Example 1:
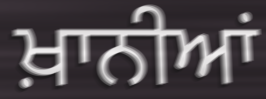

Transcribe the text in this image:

ਖ਼ਾਨੀਆਂ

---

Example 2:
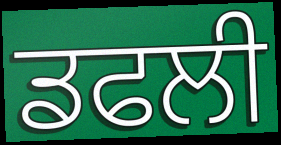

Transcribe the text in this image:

ਡਫਲੀ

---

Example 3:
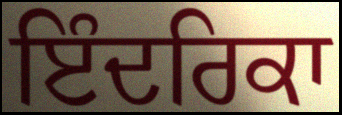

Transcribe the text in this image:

ਇੰਦਰਿਕਾ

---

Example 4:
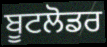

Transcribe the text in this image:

ਬੂਟਲੋਡਰ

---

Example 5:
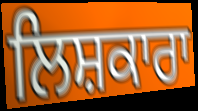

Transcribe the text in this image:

ਲਿਸ਼ਕਾਰਾ